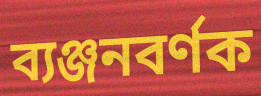
ব্যঞ্জনবৰ্ণক